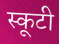
स्कूटी